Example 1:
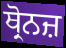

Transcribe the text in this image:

ਥ੍ਰੋਨਜ਼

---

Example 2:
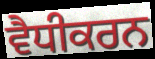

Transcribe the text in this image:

ਵੈਧੀਕਰਨ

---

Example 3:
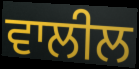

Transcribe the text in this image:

ਵਾਲੀਲ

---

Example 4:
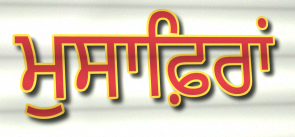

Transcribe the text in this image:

ਮੁਸਾਫ਼ਿਰਾਂ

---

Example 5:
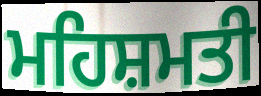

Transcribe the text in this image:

ਮਹਿਸ਼ਮਤੀ